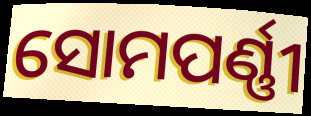
ସୋମପର୍ଣ୍ଣୀ